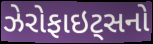
ઝેરોફાઇટ્સનો